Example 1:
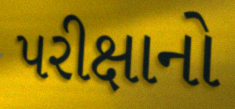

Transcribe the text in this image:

પરીક્ષાનો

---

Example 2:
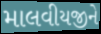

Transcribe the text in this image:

માલવીયજીને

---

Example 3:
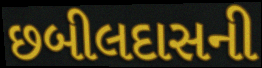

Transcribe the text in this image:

છબીલદાસની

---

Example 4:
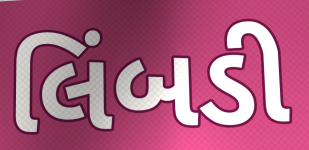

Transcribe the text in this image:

લિંબડી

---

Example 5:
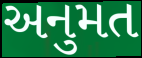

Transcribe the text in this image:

અનુમત